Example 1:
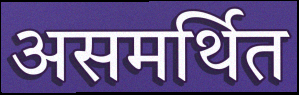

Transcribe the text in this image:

असमर्थित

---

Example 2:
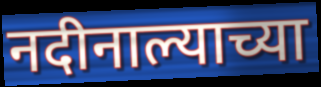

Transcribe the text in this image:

नदीनाल्याच्या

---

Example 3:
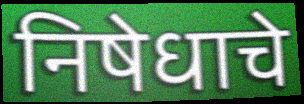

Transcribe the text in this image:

निषेधाचे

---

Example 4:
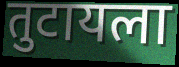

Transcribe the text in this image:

तुटायला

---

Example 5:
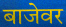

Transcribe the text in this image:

बाजेवर